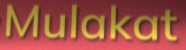
Mulakat